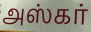
அஸ்கர்